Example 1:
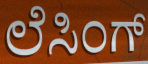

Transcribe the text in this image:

ಲೆಸಿಂಗ್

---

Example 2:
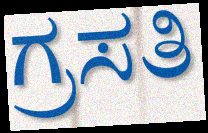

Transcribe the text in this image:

ಗ್ರಸತಿ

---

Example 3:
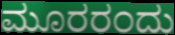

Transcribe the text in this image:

ಮೂರರಂದು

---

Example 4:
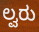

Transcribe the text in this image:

ಲ್ವರು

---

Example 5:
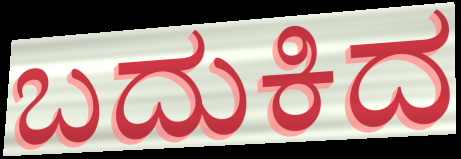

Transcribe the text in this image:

ಬದುಕಿದ